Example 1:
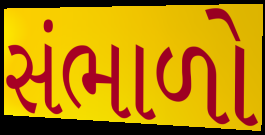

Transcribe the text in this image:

સંભાળો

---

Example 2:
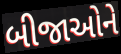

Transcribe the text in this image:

બીજાઓને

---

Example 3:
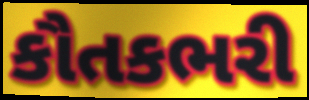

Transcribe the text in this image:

કૌતકભરી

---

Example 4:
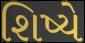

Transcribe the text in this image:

શિષ્યે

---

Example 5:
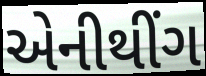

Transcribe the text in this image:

એનીથીંગ